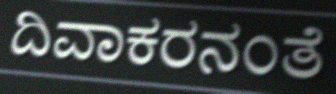
ದಿವಾಕರನಂತೆ